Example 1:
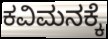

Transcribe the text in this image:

ಕವಿಮನಕ್ಕೆ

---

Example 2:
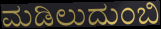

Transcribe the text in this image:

ಮಡಿಲುದುಂಬಿ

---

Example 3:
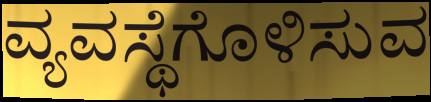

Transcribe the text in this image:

ವ್ಯವಸ್ಥೆಗೊಳಿಸುವ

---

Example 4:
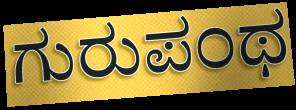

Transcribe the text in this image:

ಗುರುಪಂಥ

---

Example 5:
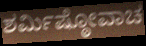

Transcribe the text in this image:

ಶರ್ಮಿಷ್ಠೋವಾಚ